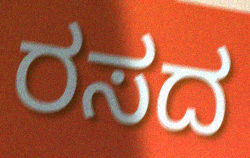
ರಸದ